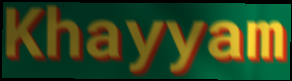
Khayyam